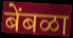
बेंबळा